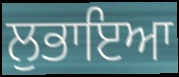
ਲੁਭਾਇਆ